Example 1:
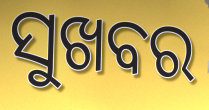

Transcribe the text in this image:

ସୁଖବର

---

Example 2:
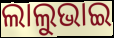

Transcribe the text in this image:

ଲାଲୁଭାଇ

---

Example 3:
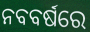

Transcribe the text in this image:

ନବବର୍ଷରେ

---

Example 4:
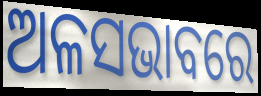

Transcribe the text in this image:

ଅଳସଭାବରେ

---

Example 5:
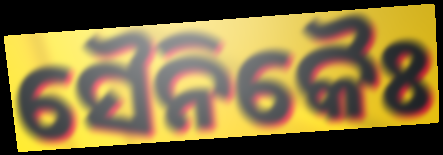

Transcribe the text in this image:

ସୈନିକୈଃ